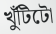
খুঁটিটো